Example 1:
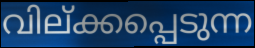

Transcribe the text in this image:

വില്ക്കപ്പെടുന്ന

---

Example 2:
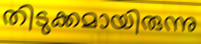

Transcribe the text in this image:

തിടുക്കമായിരുന്നു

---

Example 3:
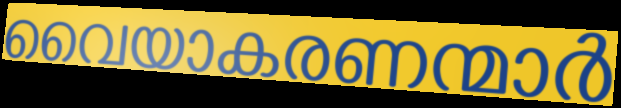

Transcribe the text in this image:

വൈയാകരണന്മാർ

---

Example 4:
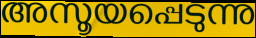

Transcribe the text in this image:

അസൂയപ്പെടുന്നു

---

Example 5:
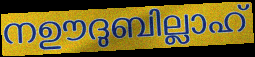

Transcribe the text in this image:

നഊദുബില്ലാഹ്